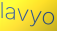
lavyo